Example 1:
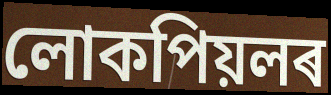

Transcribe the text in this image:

লোকপিয়লৰ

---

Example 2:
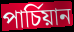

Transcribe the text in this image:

পাৰ্চিয়ান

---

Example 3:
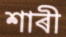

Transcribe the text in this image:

শাৰী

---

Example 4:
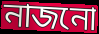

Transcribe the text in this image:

নাজনো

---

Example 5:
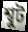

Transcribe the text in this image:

শ্বুট